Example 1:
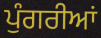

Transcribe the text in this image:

ਪੁੰਗਰੀਆਂ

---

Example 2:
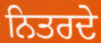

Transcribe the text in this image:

ਨਿਤਰਦੇ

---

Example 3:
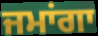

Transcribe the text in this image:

ਜਮਾਂਗਾ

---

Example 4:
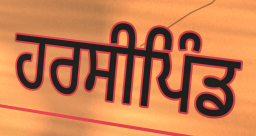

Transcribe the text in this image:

ਹਰਸੀਪਿੰਡ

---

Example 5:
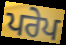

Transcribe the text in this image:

ਪਰੇਪ